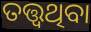
ତତ୍ତ୍ୱଥିବା